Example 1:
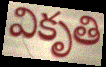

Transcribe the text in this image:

వికృతి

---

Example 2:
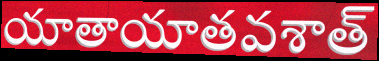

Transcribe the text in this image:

యాతాయాతవశాత్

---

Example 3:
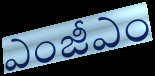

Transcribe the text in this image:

ఎంజీఎం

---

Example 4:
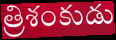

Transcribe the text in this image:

త్రిశంకుడు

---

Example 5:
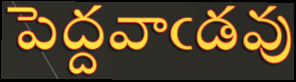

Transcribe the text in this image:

పెద్దవాఁడవు